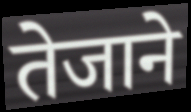
तेजाने